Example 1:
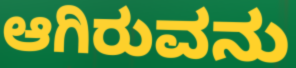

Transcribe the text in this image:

ಆಗಿರುವನು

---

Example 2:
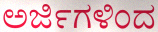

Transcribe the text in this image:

ಅರ್ಜಿಗಳಿಂದ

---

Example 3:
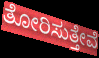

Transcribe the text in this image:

ತೋರಿಸುತ್ತೇವೆ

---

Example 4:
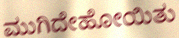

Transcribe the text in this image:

ಮುಗಿದೇಹೋಯಿತು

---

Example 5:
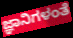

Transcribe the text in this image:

ಜ್ಞಾನಿಗಳಂತೆ